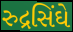
રુદ્રસિંઘે